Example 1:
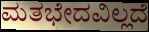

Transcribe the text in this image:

ಮತಭೇದವಿಲ್ಲದೆ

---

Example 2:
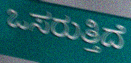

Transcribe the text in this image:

ಒಸರುತ್ತಿದೆ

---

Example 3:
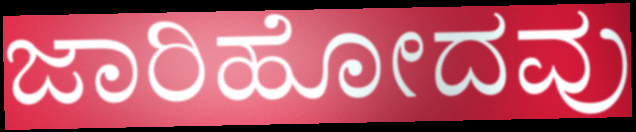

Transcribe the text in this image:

ಜಾರಿಹೋದವು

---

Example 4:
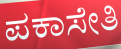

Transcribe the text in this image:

ಪಕಾಸೇತಿ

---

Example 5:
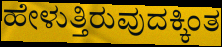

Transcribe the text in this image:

ಹೇಳುತ್ತಿರುವುದಕ್ಕಿಂತ